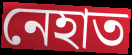
নেহাত